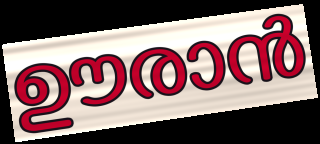
ഊരാൻ